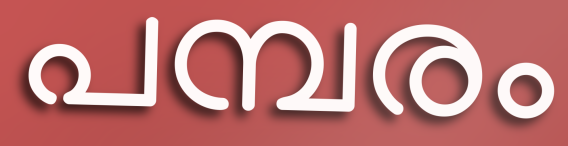
പമ്പരം